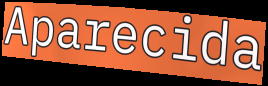
Aparecida